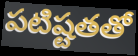
పటిష్టతతో